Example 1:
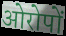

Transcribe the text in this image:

ओरोपों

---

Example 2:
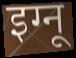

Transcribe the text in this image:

इग्‍नू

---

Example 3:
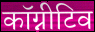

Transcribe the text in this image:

कॉग्नीटिव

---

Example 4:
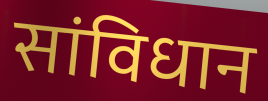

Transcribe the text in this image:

सांविधान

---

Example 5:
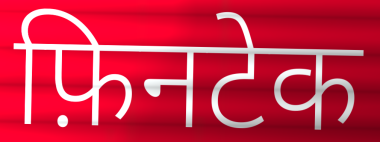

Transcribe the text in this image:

फ़िनटेक